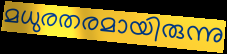
മധുരതരമായിരുന്നു